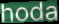
hoda